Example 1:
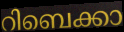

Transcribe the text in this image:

റിബെക്കാ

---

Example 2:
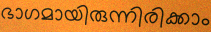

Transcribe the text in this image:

ഭാഗമായിരുന്നിരിക്കാം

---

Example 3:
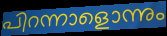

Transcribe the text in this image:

പിറന്നാളൊന്നും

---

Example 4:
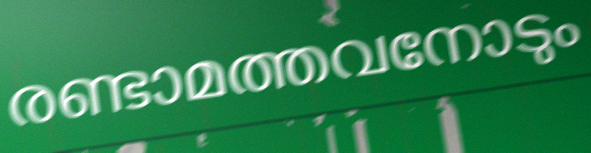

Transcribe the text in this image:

രണ്ടാമത്തവനോടും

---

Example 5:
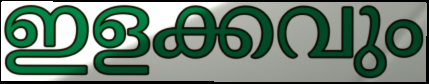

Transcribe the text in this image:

ഇളക്കവും